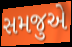
સમજુએ